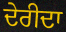
ਦੇਰੀਦਾ